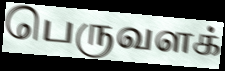
பெருவளக்